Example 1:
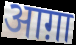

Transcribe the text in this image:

आग़ा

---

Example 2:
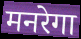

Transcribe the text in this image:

मनरेगा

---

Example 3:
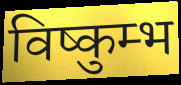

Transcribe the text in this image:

विष्कुम्भ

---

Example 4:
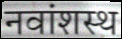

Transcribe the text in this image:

नवांशस्थ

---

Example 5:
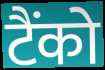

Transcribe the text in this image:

टैंको